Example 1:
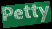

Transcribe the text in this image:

Petty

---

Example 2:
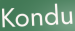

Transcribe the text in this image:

Kondu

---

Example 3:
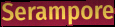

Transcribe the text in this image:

Serampore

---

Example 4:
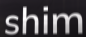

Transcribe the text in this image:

shim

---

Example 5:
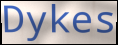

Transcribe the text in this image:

Dykes